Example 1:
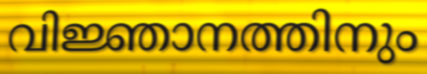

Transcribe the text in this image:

വിജ്ഞാനത്തിനും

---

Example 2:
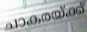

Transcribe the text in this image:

ചാകരയ്ക്ക്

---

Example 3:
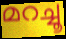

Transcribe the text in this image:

മറച്ചൂ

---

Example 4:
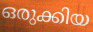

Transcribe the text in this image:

ഒരുക്കിയ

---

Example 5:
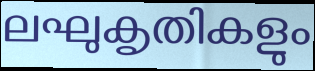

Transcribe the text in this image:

ലഘുകൃതികളും